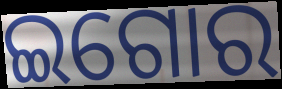
ଇଗୋର